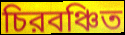
চিরবঞ্চিত